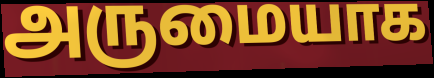
அருமையாக